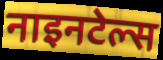
नाइनटेल्स